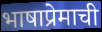
भाषाप्रेमाची